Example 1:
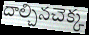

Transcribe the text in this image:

దాల్చినచెక్క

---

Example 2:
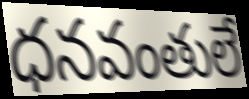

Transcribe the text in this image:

ధనవంతులే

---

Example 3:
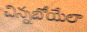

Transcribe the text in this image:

చిన్నబోయేలా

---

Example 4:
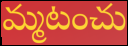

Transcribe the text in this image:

మ్మటంచు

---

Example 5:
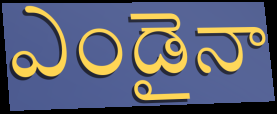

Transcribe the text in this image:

ఎండైనా